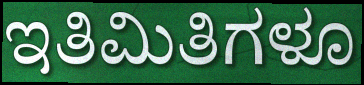
ಇತಿಮಿತಿಗಳೂ